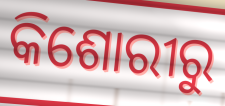
କିଶୋରୀରୁ